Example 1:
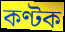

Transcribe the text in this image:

কণ্টক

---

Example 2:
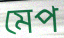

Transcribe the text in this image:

মেপ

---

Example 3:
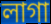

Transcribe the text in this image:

লাগা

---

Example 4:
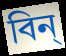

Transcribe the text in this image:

বিন্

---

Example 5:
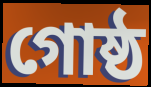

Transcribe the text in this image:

গোষ্ঠ